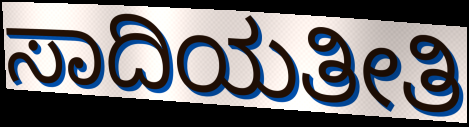
ಸಾದಿಯತೀತಿ